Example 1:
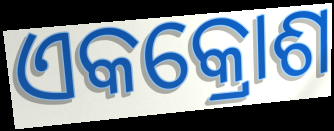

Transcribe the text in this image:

ଏକକ୍ରୋଶ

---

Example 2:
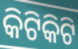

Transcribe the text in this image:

କିଟିକିଟି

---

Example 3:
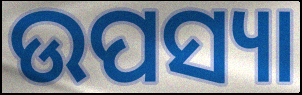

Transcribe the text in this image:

ଉପସ୍ୟା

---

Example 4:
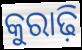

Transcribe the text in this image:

କୁରାଢ଼ି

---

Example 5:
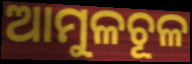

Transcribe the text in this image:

ଆମୁଳଚୂଳ